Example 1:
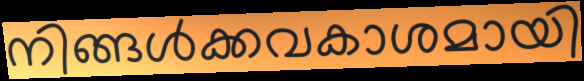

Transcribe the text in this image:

നിങ്ങൾക്കവകാശമായി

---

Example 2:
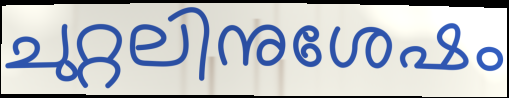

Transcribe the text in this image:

ചുറ്റലിനുശേഷം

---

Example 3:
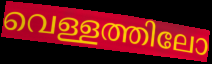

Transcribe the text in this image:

വെള്ളത്തിലോ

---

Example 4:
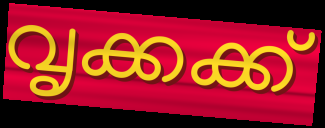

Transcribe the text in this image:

വൃക്കക്ക്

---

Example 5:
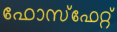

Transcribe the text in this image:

ഫോസ്ഫേറ്റ്